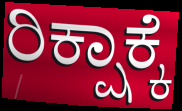
ರಿಕ್ಷಾಕ್ಕೆ